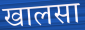
खालसा